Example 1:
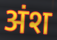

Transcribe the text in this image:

अंश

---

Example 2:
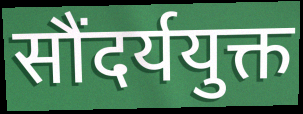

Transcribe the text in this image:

सौंदर्ययुक्त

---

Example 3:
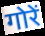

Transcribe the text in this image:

गोरें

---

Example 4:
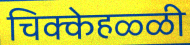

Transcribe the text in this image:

चिक्केहळ्ळी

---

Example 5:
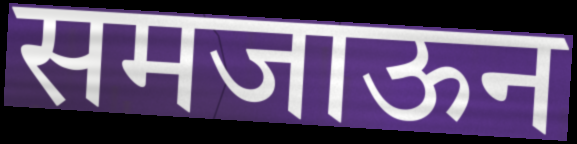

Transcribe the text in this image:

समजाऊन